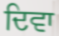
ਦਿਵਾ